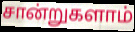
சான்றுகளாம்